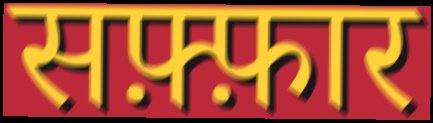
सफ़्फ़ार